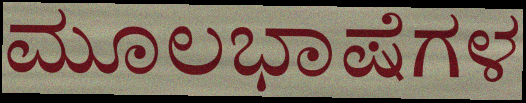
ಮೂಲಭಾಷೆಗಳ